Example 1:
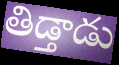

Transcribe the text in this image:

తిడ్తాడు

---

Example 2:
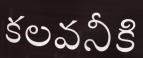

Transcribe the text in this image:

కలవనీకి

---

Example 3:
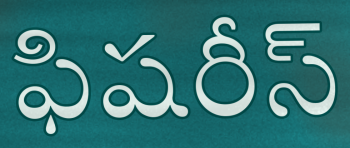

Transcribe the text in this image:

ఫిషరీస్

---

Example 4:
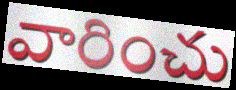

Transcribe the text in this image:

వారించు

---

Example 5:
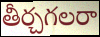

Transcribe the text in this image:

తీర్చగలరా